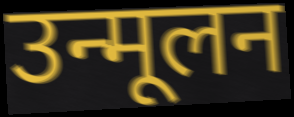
उन्‍मूलन